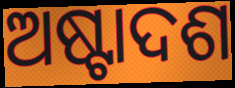
ଅଷ୍ଟାଦଶ